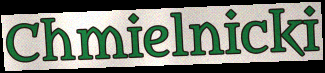
Chmielnicki